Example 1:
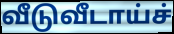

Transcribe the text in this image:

வீடுவீடாய்ச்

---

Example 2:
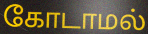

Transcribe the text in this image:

கோடாமல்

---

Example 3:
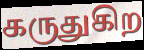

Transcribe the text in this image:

கருதுகிற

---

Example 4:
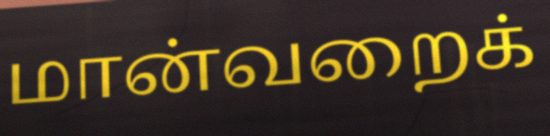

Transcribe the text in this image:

மான்வறைக்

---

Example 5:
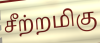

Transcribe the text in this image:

சீற்றமிகு